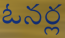
ఓనర్ల